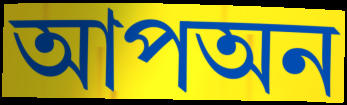
আপঅন